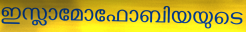
ഇസ്ലാമോഫോബിയയുടെ